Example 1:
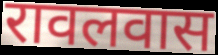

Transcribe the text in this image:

रावलवास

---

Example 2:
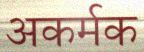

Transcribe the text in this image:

अकर्मक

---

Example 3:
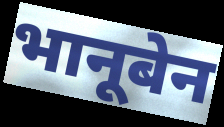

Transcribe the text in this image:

भानूबेन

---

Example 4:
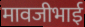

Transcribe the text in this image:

मावजीभाई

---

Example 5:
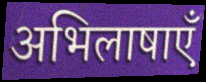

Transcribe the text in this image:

अभिलाषाएँ